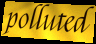
polluted